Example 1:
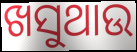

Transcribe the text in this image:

ଖସୁଥାଉ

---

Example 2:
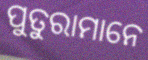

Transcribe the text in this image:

ପୁତୁରାମାନେ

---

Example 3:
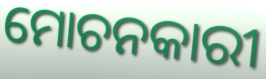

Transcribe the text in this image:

ମୋଚନକାରୀ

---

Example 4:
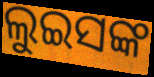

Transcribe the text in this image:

ଲୁଇସଙ୍କ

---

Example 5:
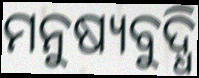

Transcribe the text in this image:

ମନୁଷ୍ୟବୁଦ୍ଧି